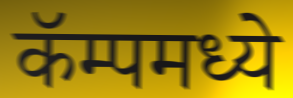
कॅम्पमध्ये